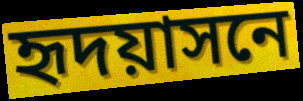
হৃদয়াসনে